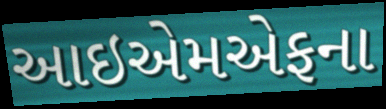
આઇએમએફના